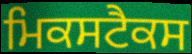
ਮਿਕਸਟੈਕਸ